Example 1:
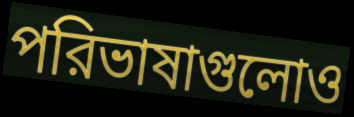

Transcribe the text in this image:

পরিভাষাগুলোও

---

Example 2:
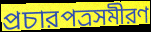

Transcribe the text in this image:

প্রচারপত্রসমীরণ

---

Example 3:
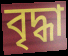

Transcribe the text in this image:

বৃদ্ধা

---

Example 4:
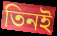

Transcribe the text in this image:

তিনই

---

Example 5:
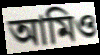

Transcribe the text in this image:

আমিও